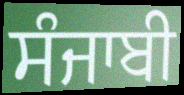
ਸੰਜਾਬੀ